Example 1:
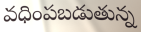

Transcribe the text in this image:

వధింపబడుతున్న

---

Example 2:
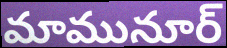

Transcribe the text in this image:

మామునూర్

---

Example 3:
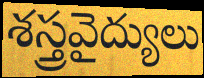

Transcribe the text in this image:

శస్త్రవైద్యులు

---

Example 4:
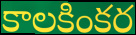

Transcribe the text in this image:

కాలకింకర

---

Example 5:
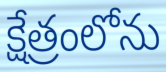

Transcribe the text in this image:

క్షేత్రంలోను